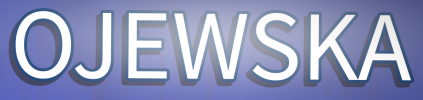
OJEWSKA